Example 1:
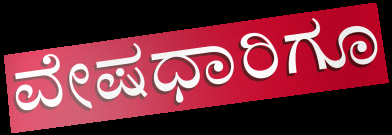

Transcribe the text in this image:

ವೇಷಧಾರಿಗೂ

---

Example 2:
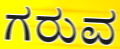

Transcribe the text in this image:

ಗರುವ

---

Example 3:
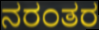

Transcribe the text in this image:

ನರಂತರ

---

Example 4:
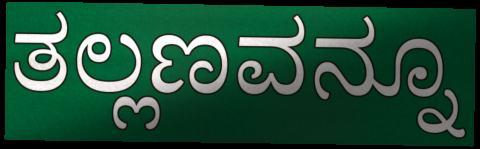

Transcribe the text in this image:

ತಲ್ಲಣವನ್ನೂ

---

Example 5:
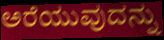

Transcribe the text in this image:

ಅರೆಯುವುದನ್ನು